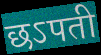
छऽपती